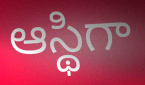
ఆస్థిగా